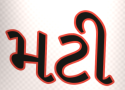
મટી